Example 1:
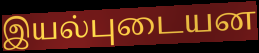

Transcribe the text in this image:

இயல்புடையன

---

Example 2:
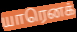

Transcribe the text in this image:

யாரெனக்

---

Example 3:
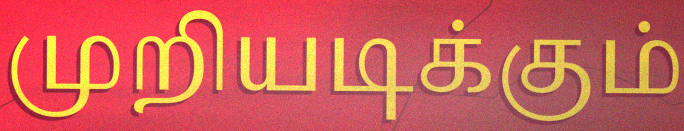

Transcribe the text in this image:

முறியடிக்கும்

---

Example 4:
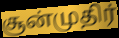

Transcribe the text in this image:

சூன்முதிர்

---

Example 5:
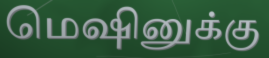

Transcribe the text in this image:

மெஷினுக்கு